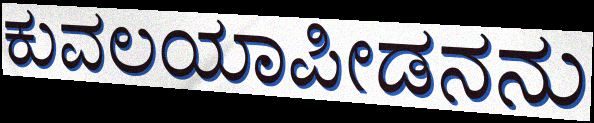
ಕುವಲಯಾಪೀಡನನು